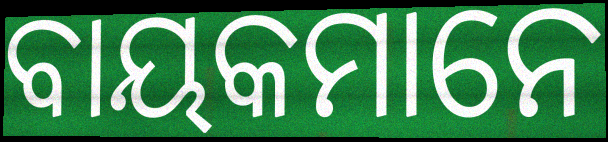
ବାୟକମାନେ